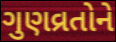
ગુણવ્રતોને